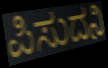
ಪಿಸುದನಿ